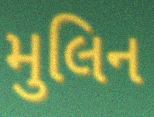
મુલિન